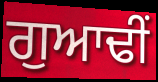
ਗੁਆਢੀਂ